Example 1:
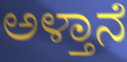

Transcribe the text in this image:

ಅಳ್ತಾನೆ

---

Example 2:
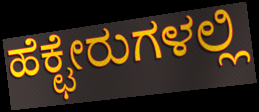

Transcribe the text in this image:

ಹೆಕ್ಟೇರುಗಳಲ್ಲಿ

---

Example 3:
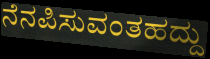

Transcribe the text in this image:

ನೆನಪಿಸುವಂತಹದ್ದು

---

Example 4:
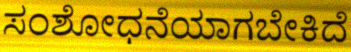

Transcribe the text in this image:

ಸಂಶೋಧನೆಯಾಗಬೇಕಿದೆ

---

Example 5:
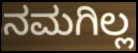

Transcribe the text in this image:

ನಮಗಿಲ್ಲ